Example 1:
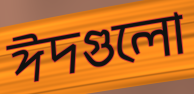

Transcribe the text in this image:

ঈদগুলো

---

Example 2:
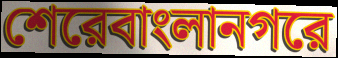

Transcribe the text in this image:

শেরেবাংলানগরে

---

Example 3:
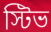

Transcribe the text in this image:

স্টিভ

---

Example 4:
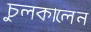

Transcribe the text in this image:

চুলকালেন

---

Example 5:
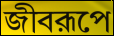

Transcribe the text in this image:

জীবরূপে